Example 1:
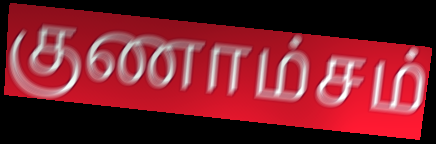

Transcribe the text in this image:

குணாம்சம்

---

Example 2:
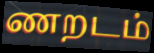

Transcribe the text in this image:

ணறடம்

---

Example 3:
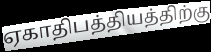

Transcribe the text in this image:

ஏகாதிபத்தியத்திற்கு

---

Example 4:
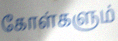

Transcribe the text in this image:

கோள்களும்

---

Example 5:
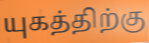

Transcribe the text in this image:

யுகத்திற்கு